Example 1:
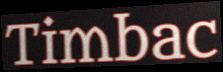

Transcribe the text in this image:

Timbac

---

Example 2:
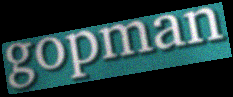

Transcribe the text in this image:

gopman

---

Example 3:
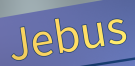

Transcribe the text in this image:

Jebus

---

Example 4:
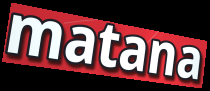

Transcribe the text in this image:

matana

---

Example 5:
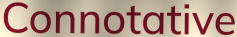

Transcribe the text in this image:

Connotative